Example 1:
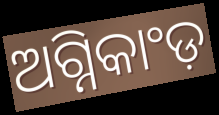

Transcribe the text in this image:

ଅଗ୍ନିକାଂଡ଼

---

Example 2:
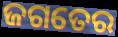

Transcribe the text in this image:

ଜଗତେର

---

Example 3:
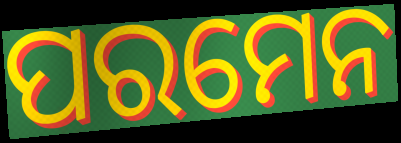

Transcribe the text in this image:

ପରମେନ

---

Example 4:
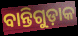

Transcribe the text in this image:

ବାନ୍ତିଗୁଡ଼ାକ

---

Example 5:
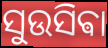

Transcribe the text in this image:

ସୁଉସିଵା